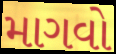
માગવો